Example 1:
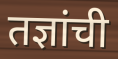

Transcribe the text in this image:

तज्ञांची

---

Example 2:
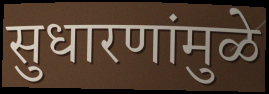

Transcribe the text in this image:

सुधारणांमुळे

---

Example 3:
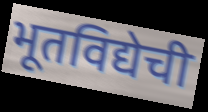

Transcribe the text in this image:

भूतविद्येची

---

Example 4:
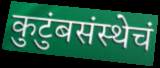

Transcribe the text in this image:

कुटुंबसंस्थेचं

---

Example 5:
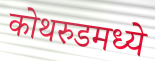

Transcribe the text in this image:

कोथरुडमध्ये